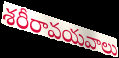
శరీరావయవాలు